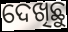
ଦେଖିଛୁ